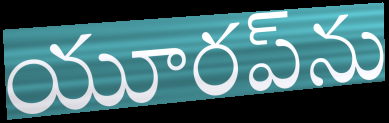
యూరప్‌ను